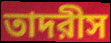
তাদরীস